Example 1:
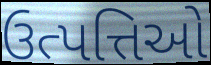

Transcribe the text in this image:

ઉત્પત્તિઓ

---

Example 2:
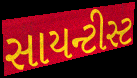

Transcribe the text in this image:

સાયન્ટીસ્ટ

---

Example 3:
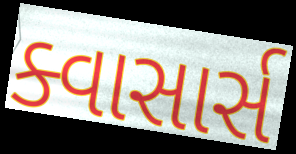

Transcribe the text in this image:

ક્વાસાર્સ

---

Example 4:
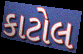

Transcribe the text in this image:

કાટોલ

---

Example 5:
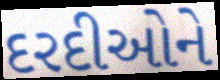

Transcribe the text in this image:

દરદીઓને